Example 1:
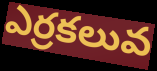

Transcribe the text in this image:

ఎర్రకలువ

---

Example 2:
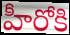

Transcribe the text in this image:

హీరోకి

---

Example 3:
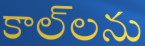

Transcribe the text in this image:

కాల్‌లను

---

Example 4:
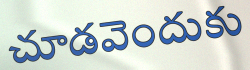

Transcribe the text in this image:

చూడవెందుకు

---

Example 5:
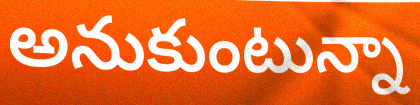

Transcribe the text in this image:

అనుకుంటున్నా